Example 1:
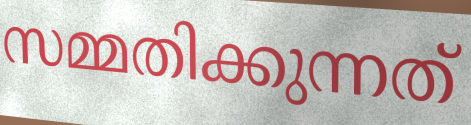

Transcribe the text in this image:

സമ്മതിക്കുന്നത്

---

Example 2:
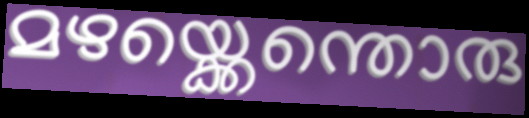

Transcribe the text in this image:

മഴയ്ക്കെന്തൊരു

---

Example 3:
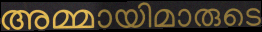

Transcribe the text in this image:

അമ്മായിമാരുടെ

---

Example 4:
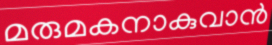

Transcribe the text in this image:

മരുമകനാകുവാൻ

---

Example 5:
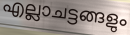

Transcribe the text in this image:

എല്ലാചട്ടങ്ങളും